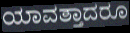
ಯಾವತ್ತಾದರೂ